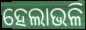
ହେଲାଭଳି